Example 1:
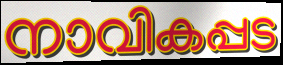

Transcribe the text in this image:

നാവികപ്പട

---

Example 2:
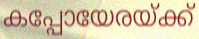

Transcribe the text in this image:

കപ്പോയേരയ്ക്ക്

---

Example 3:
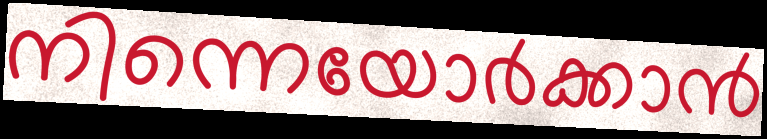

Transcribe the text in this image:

നിന്നെയോർക്കാൻ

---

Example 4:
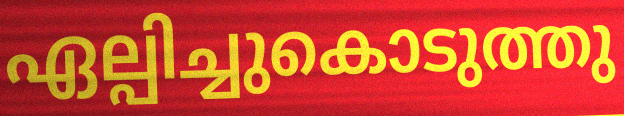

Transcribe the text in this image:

ഏല്പിച്ചുകൊടുത്തു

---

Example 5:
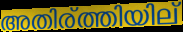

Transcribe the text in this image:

അതിര്ത്തിയില്